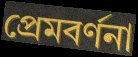
প্রেমবর্ণনা